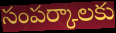
సంపర్కాలకు